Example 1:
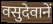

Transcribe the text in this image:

वसुदेवानें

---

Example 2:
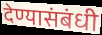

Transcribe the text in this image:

देण्यासंबंधी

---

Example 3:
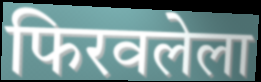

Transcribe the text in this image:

फिरवलेला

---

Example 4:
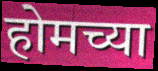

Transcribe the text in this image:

होमच्या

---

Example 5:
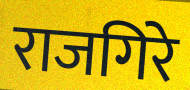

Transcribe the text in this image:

राजगिरे